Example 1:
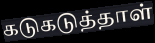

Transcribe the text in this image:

கடுகடுத்தாள்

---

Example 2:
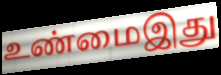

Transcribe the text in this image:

உண்மைஇது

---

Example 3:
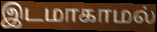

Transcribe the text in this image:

இடமாகாமல்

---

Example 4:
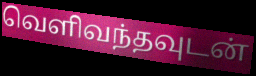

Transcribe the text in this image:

வெளிவந்தவுடன்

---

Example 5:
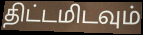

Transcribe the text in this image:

திட்டமிடவும்